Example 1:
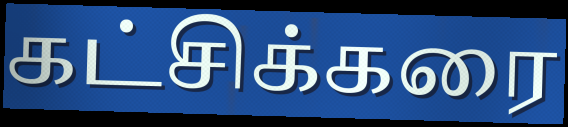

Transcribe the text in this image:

கட்சிக்கரை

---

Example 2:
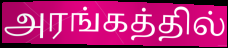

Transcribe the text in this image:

அரங்கத்தில்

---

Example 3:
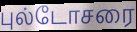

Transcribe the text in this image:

புல்டோசரை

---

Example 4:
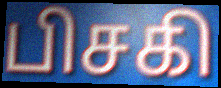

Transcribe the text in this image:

பிசகி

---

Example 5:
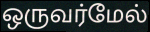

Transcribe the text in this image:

ஒருவர்மேல்